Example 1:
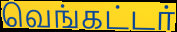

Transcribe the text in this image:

வெங்கட்டர்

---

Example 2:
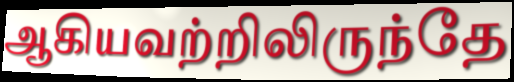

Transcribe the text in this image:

ஆகியவற்றிலிருந்தே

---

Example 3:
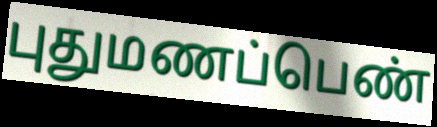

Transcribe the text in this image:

புதுமணப்பெண்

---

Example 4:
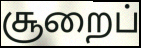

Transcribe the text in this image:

சூறைப்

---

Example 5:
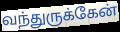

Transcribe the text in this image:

வந்துருக்கேன்